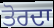
ਤੋਰਦਾ